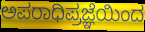
ಅಪರಾಧಿಪ್ರಜ್ಞೆಯಿಂದ